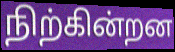
நிற்கின்றன